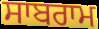
ਸਾਬਰਾਮ